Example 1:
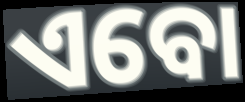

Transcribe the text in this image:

ଏବୋ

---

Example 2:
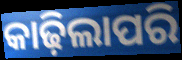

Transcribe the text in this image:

କାଢ଼ିଲାପରି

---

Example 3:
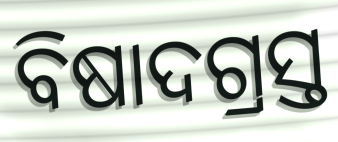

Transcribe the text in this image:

ବିଷାଦଗ୍ରସ୍ତ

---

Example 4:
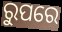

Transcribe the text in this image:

ରୁପରେ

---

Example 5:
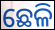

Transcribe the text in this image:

ଛେଳି